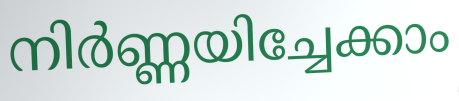
നിർണ്ണയിച്ചേക്കാം